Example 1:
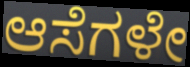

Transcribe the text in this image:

ಆಸೆಗಳೇ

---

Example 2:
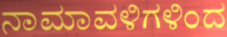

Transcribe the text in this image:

ನಾಮಾವಳಿಗಳಿಂದ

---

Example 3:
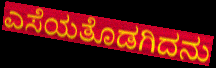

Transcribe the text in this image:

ಎಸೆಯತೊಡಗಿದನು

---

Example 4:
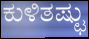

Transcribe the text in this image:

ಕುಳಿತಷ್ಟು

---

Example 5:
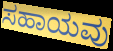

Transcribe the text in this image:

ಸಹಾಯವು